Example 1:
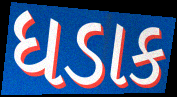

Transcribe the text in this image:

ધડાક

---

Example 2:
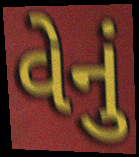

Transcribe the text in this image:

વેનું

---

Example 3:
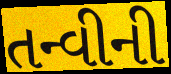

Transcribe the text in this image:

તન્વીની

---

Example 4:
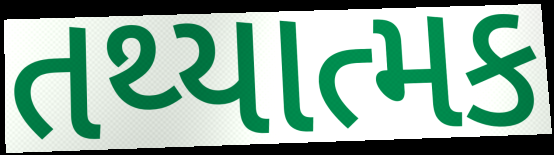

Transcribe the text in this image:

તથ્યાત્મક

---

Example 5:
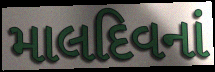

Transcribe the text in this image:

માલદિવનાં